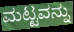
ಮಟ್ಟವನ್ನು